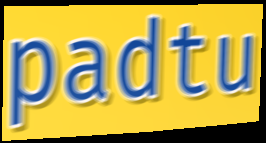
padtu